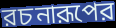
রচনারূপের